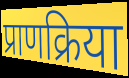
प्राणक्रिया